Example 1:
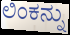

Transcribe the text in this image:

ಲಿಂಕನ್ನು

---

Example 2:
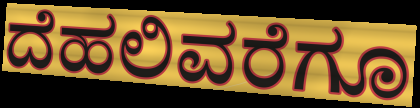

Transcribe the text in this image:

ದೆಹಲಿವರೆಗೂ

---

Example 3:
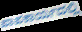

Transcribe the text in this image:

ಪಾಪಕಾರ್ಯದಲ್ಲಿ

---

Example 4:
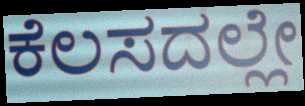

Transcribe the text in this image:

ಕೆಲಸದಲ್ಲೇ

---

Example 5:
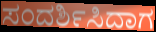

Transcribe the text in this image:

ಸಂದರ್ಶಿಸಿದಾಗ